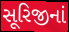
સૂરિજીનાં